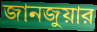
জানজুয়ার